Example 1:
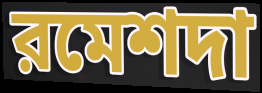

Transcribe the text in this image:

রমেশদা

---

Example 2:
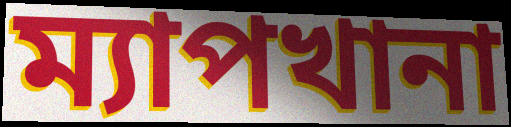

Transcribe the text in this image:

ম্যাপখানা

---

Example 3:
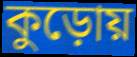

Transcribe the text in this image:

কুড়োয়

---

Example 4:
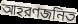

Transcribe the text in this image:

আহরণজনিত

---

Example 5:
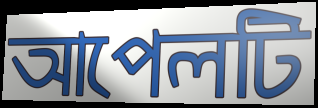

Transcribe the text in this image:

আপেলটি